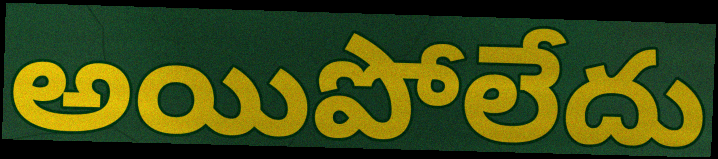
అయిపోలేదు